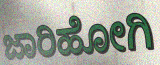
ಜಾರಿಹೋಗಿ